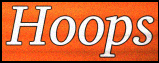
Hoops